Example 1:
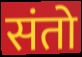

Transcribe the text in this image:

संतो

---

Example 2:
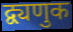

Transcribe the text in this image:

द्व्यणुक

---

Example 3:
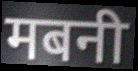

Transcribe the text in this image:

मबनी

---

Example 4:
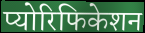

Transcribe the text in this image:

प्योरिफिकेशन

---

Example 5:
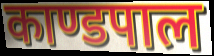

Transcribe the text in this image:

काण्डपाल